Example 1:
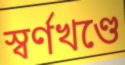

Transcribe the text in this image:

স্বর্ণখণ্ডে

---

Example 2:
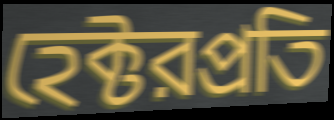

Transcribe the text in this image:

হেক্টরপ্রতি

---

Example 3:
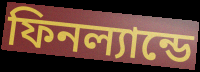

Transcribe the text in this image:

ফিনল্যান্ডে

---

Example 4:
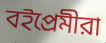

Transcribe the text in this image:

বইপ্রেমীরা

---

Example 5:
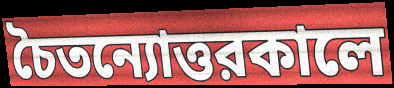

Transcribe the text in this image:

চৈতন্যোত্তরকালে